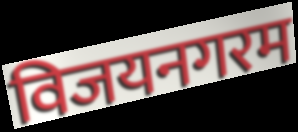
विजयनगरम